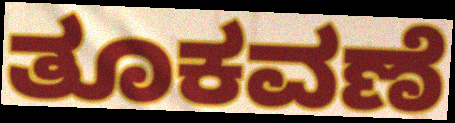
ತೂಕವಣೆ